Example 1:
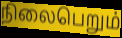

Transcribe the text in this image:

நிலைபெறும்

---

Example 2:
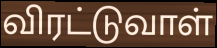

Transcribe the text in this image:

விரட்டுவாள்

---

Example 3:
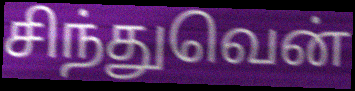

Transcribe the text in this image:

சிந்துவென்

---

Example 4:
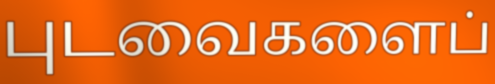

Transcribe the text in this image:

புடவைகளைப்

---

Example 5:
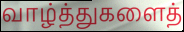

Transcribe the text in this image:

வாழ்த்துகளைத்